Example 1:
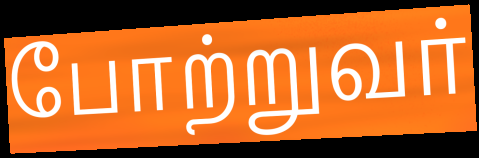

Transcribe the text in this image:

போற்றுவர்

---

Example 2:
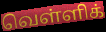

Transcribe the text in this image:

வெள்ளிக்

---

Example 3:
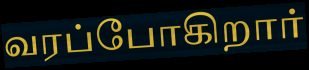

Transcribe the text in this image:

வரப்போகிறார்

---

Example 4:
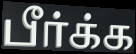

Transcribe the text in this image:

பீர்க்க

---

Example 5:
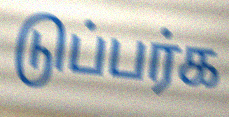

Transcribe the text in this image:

டுப்பர்க